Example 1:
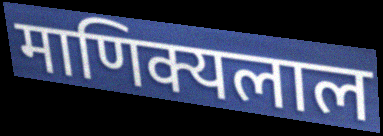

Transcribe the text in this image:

माणिक्यलाल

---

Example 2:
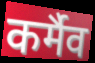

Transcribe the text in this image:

कर्मैव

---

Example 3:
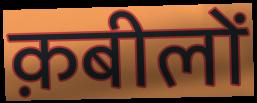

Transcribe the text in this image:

क़बीलों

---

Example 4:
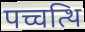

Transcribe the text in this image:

पच्चत्थि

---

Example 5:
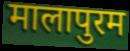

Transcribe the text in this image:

मालापुरम